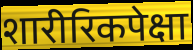
शारीरिकपेक्षा